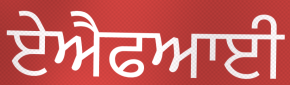
ਏਐਫਆਈ